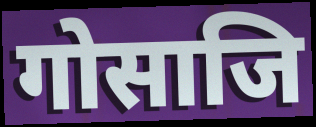
गोसाजि